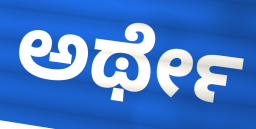
ಅರ್ಥೇ